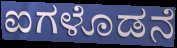
ಐಗಳೊಡನೆ